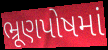
ભ્રૂણપોષમાં